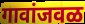
गावांजवळ